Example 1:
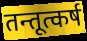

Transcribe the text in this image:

तन्तूत्कर्ष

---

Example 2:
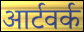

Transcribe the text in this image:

आर्टवर्क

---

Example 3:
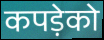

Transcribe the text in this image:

कपड़ेको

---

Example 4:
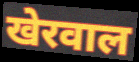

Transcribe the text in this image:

खेरवाल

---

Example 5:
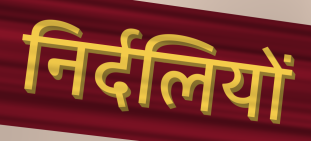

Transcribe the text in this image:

निर्दलियों